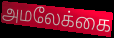
அமலேக்கை